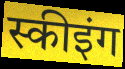
स्कीइंग